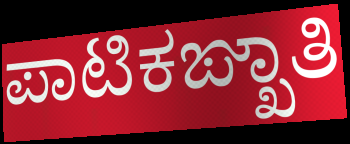
ಪಾಟಿಕಙ್ಖಾತಿ